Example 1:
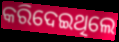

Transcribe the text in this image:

କରିଦେଇଥିଲେ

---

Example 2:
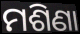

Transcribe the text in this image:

ମଶିଣା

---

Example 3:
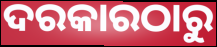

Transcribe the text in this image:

ଦରକାରଠାରୁ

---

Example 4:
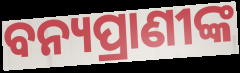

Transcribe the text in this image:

ବନ୍ୟପ୍ରାଣୀଙ୍କ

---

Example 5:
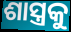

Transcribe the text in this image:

ଶାସ୍ତ୍ରକୁ